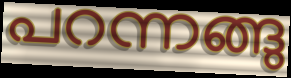
പറന്നങ്ങു